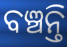
ବଞ୍ଚନ୍ତି